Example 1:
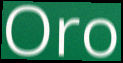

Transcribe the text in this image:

Oro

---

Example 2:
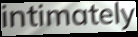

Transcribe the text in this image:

intimately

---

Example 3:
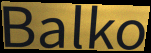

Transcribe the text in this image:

Balko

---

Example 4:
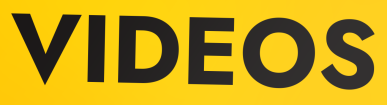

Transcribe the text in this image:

VIDEOS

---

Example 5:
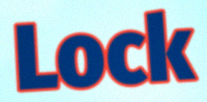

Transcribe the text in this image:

Lock